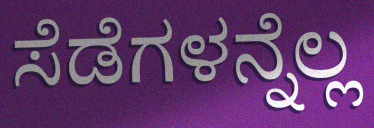
ಸೆಡೆಗಳನ್ನೆಲ್ಲ